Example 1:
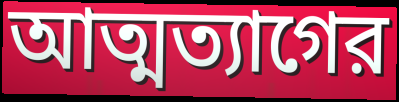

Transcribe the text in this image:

আত্মত্যাগের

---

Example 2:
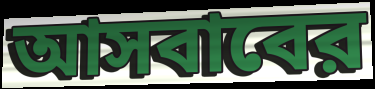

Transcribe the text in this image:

আসবাবের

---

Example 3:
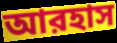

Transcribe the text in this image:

আরহাস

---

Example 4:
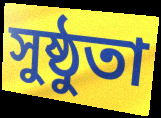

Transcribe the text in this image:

সুষ্ঠুতা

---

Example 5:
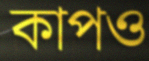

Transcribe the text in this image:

কাপও